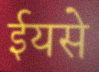
ईयसे